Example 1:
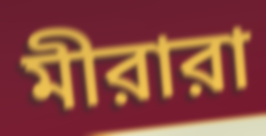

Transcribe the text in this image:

মীরারা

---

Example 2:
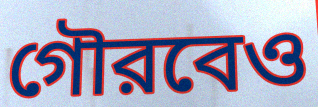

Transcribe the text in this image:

গৌরবেও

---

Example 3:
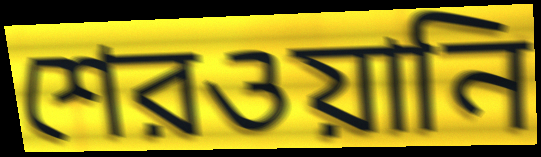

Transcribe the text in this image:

শেরওয়ানি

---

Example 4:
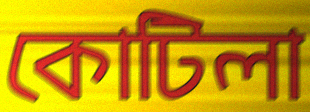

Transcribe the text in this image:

কোটিলা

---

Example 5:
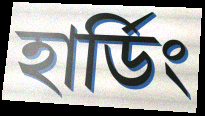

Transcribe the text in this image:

হার্ডিং